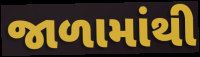
જાળામાંથી